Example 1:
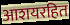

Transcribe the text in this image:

आशयरहित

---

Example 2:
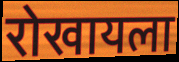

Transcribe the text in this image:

रोखायला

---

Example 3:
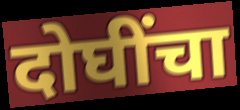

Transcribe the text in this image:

दोघींचा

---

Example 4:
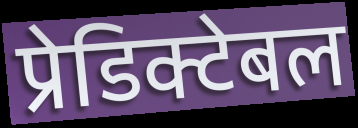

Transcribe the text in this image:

प्रेडिक्टेबल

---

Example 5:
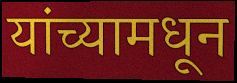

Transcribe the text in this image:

यांच्यामधून